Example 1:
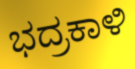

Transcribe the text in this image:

ಭದ್ರಕಾಳಿ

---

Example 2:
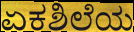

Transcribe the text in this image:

ಏಕಶಿಲೆಯ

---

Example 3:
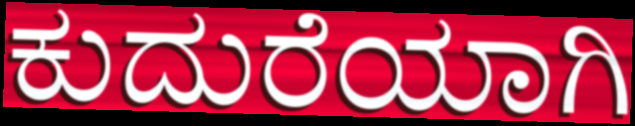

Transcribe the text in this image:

ಕುದುರೆಯಾಗಿ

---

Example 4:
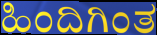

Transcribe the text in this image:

ಹಿಂದಿಗಿಂತ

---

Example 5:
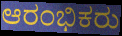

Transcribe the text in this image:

ಆರಂಭಿಕರು